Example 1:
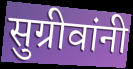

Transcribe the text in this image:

सुग्रीवांनी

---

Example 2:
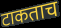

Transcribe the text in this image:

टाकताच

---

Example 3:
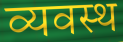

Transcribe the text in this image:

व्यवस्थ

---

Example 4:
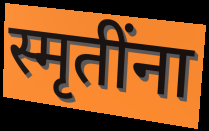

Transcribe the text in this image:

स्मृतींना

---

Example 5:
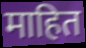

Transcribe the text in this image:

माहित